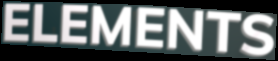
ELEMENTS